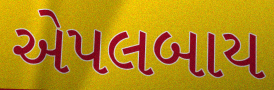
એપલબાય